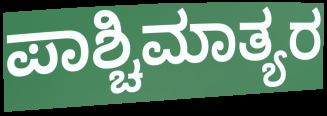
ಪಾಶ್ಚಿಮಾತ್ಯರ